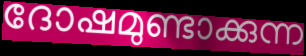
ദോഷമുണ്ടാക്കുന്ന